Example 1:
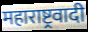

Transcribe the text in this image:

महाराष्ट्रवादी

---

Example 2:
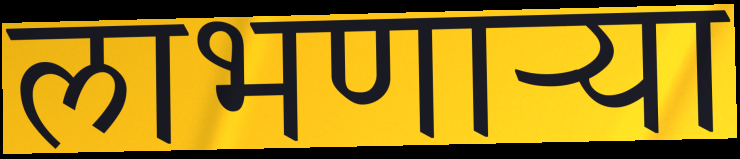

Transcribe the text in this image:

लाभणाऱ्या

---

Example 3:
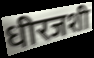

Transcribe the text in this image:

धीरजशी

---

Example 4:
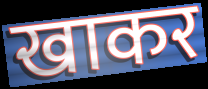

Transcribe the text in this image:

खाकर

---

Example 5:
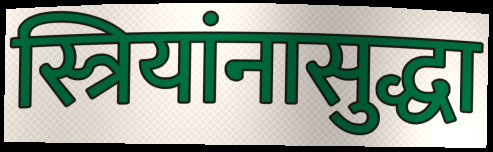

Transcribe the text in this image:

स्त्रियांनासुद्धा